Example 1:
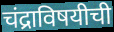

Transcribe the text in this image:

चंद्राविषयीची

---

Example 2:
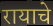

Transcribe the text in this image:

रायाचे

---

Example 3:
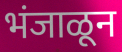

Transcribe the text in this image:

भंजाळून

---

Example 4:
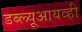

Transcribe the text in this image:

डब्ल्यूआयव्ही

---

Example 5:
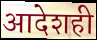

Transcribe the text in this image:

आदेशही